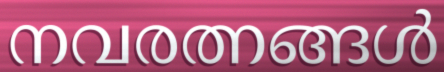
നവരത്നങ്ങൾ